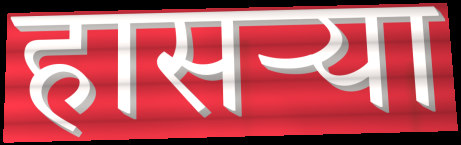
हासऱ्या